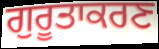
ਗੁਰੂਤਾਕਰਣ